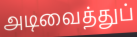
அடிவைத்துப்